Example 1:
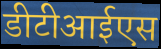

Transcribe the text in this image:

डीटीआईएस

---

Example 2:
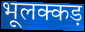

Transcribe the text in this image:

भूलक्कड़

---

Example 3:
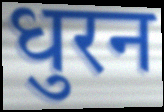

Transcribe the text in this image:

धुरन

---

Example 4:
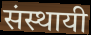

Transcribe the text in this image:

संस्थायी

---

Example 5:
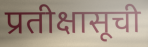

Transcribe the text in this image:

प्रतीक्षासूची